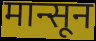
मान्सून